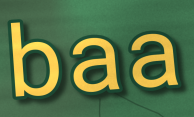
baa